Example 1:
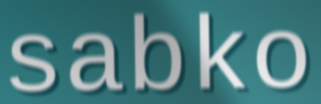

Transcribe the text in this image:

sabko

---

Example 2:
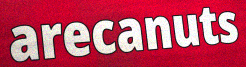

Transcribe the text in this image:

arecanuts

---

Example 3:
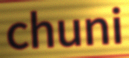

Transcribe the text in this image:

chuni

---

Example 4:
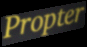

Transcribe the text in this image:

Propter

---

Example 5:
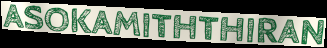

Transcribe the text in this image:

ASOKAMITHTHIRAN